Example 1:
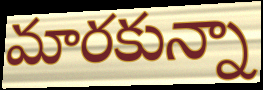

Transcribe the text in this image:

మారకున్నా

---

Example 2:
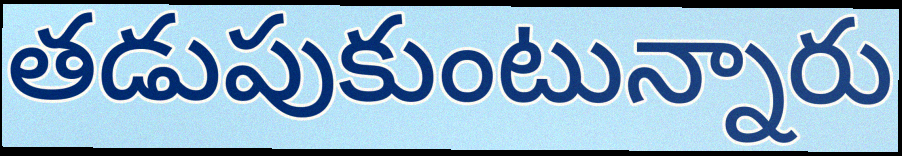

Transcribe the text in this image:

తడుపుకుంటున్నారు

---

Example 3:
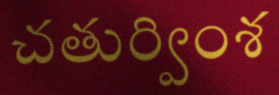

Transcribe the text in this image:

చతుర్వింశ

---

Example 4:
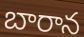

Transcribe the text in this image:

బారాన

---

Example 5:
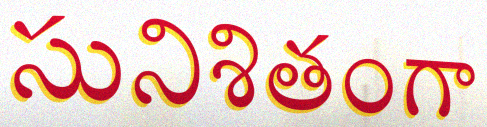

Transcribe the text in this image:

సునిశితంగా